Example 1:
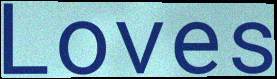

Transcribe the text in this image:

Loves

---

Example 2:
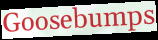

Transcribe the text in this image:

Goosebumps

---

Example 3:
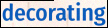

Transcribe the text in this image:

decorating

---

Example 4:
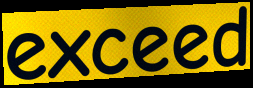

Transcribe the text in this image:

exceed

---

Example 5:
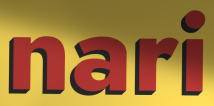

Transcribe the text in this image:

nari